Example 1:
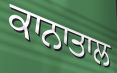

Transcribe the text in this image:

ਕਾਨਾਤਾਲ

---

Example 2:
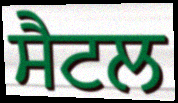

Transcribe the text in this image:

ਸੈਟਲ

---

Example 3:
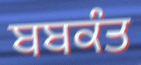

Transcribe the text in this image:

ਬਬਕੰਤ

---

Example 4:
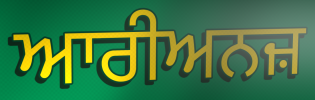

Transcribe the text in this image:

ਆਰੀਅਨਜ਼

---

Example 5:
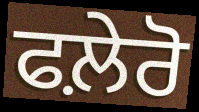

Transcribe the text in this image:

ਫਲ਼ੇਰੋ